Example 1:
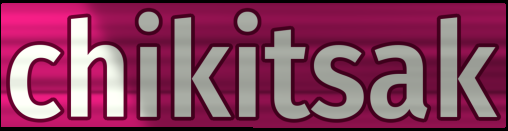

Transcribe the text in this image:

chikitsak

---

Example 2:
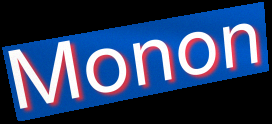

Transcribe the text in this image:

Monon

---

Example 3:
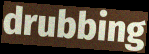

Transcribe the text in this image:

drubbing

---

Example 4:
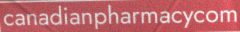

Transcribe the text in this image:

canadianpharmacycom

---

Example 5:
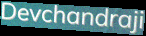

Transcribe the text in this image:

Devchandraji